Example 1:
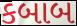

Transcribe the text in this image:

કબાબ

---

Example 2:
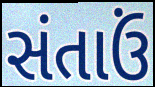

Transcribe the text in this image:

સંતાઉં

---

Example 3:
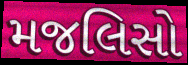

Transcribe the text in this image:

મજલિસો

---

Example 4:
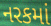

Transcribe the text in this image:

નરકમાં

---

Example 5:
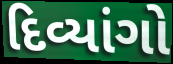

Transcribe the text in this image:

દિવ્યાંગો